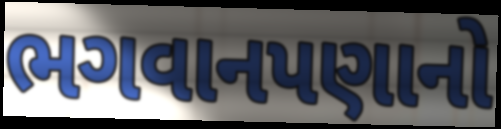
ભગવાનપણાનો